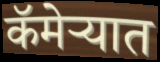
कॅमेर्‍यात